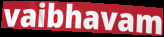
vaibhavam